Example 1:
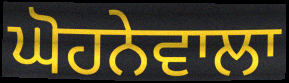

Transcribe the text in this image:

ਘੋਹਨੇਵਾਲਾ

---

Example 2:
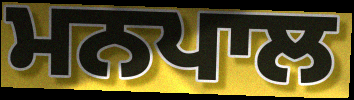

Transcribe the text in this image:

ਮਨਪਾਲ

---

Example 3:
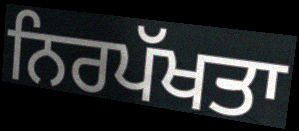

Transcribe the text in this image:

ਨਿਰਪੱਖਤਾ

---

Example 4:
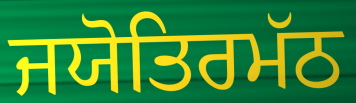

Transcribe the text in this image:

ਜਯੋਤਿਰਮੱਠ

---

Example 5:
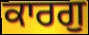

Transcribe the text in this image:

ਕਾਰਗੁ